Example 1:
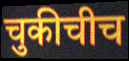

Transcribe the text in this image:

चुकीचीच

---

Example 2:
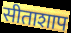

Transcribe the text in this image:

सीताशाप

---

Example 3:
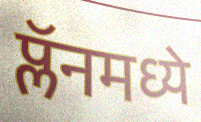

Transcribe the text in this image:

प्लॅनमध्ये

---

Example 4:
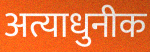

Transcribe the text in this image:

अत्याधुनीक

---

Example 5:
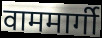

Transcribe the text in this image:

वाममार्गी